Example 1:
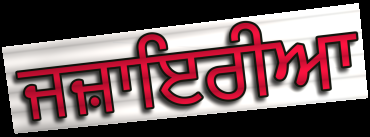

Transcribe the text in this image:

ਜਜ਼ਾਇਰੀਆ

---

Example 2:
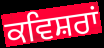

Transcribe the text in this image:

ਕਵਿਸ਼ਰਾਂ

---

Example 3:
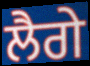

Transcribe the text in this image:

ਲੈਗੇ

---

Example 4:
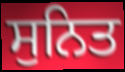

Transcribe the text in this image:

ਸੁਨਿਤ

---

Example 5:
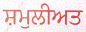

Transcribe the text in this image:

ਸ਼ਮੁਲੀਅਤ